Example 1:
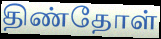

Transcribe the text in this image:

திண்தோள்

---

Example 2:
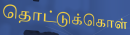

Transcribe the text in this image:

தொட்டுக்கொள்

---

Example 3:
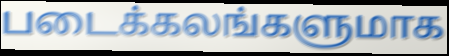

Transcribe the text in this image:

படைக்கலங்களுமாக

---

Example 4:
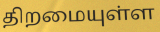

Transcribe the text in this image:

திறமையுள்ள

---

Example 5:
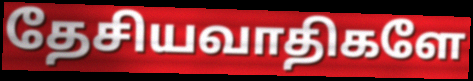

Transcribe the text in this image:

தேசியவாதிகளே